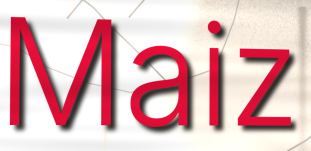
Maiz